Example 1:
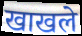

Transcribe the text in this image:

खाखले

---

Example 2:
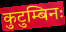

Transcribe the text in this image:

कुटुम्बिनः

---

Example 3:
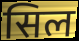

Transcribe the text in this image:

सिल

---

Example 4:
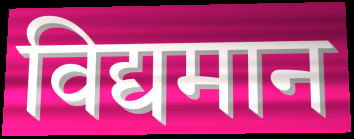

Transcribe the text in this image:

विद्यमान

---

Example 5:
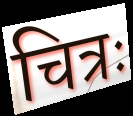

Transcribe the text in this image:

चित्रः